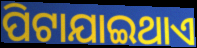
ପିଟାଯାଇଥାଏ